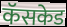
कॅसकेड